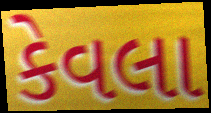
કેવલા